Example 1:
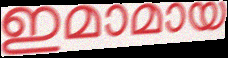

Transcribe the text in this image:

ഇമാമായ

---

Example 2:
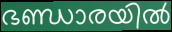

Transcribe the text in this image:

ഭണ്ഡാരയിൽ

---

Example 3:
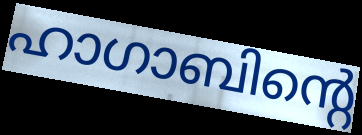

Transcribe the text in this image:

ഹാഗാബിന്റെ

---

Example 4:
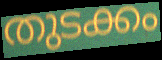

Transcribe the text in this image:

തുടക്കം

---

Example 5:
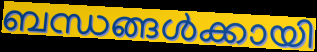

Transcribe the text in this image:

ബന്ധങ്ങൾക്കായി